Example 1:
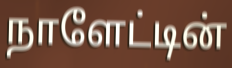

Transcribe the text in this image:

நாளேட்டின்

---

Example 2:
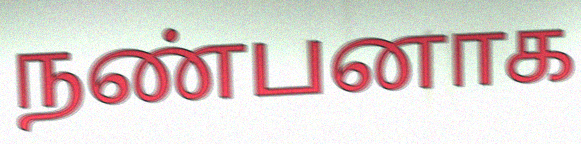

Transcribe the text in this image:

நண்பனாக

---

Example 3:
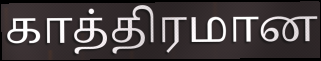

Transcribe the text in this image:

காத்திரமான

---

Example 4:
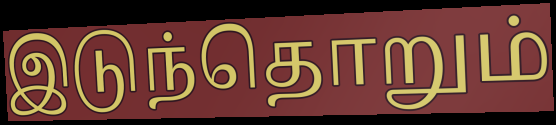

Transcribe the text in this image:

இடுந்தொறும்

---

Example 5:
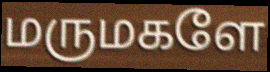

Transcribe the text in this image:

மருமகளே